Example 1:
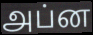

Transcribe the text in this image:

அப்ன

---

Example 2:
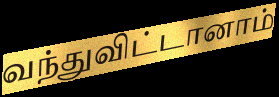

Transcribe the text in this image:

வந்துவிட்டானாம்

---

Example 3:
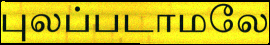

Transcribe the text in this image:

புலப்படாமலே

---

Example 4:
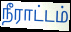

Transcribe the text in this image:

நீராட்டம்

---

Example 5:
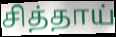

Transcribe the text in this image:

சித்தாய்